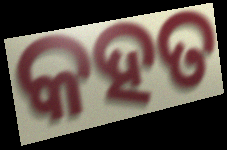
କହତ